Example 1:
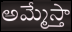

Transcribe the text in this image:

అమ్మేస్తా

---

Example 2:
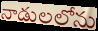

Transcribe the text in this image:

నాడులలోను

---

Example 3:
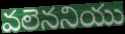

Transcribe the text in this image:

వలెననియు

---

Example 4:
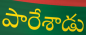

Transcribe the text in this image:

పారేశాడు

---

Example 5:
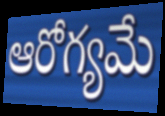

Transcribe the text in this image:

ఆరోగ్యమే